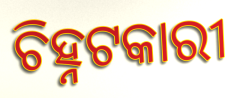
ଚିହ୍ନଟକାରୀ